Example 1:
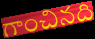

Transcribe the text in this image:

గాంచినది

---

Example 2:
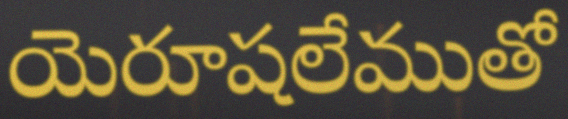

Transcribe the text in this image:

యెరూషలేముతో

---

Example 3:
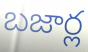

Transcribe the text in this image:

బజార్ల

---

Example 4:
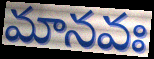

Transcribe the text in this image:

మానవః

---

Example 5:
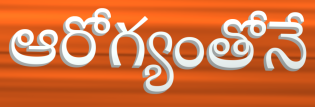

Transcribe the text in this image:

ఆరోగ్యంతోనే